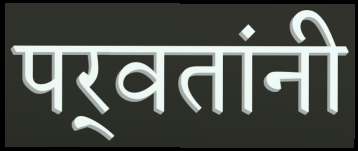
पर्वतांनी